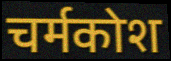
चर्मकोश